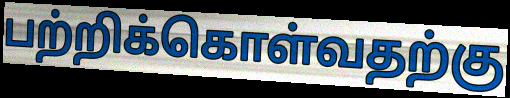
பற்றிக்கொள்வதற்கு